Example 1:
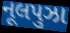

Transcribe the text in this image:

નૂલપુઝા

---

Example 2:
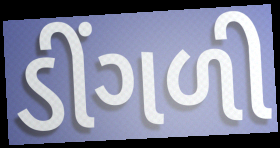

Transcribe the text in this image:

ડીંગળી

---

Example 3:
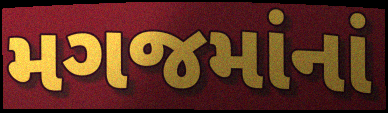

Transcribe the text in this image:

મગજમાંનાં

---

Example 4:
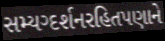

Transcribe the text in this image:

સમ્યગ્દર્શનરહિતપણાને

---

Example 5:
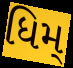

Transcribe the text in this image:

ધિમ્